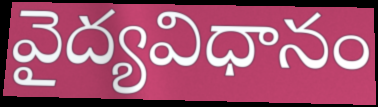
వైద్యవిధానం